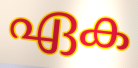
ഏക